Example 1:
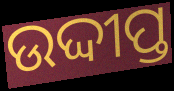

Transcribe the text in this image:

ଉଦ୍ଦୀପ୍ତ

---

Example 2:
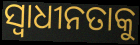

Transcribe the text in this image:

ସ୍ୱାଧୀନତାକୁ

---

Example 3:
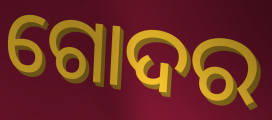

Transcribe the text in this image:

ଗୋଦର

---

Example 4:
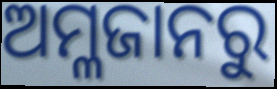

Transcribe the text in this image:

ଅମ୍ଳଜାନରୁ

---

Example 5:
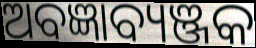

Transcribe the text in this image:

ଅବଜ୍ଞାବ୍ୟଞ୍ଜକ